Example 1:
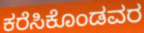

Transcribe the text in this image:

ಕರೆಸಿಕೊಂಡವರ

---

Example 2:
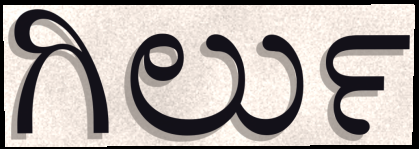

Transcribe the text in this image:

ಗಿರ್ಲು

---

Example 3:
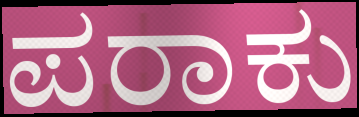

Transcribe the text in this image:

ಪರಾಕು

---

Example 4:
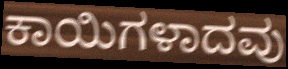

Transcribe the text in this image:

ಕಾಯಿಗಳಾದವು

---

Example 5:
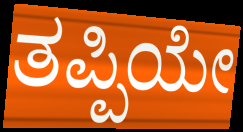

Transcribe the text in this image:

ತಪ್ಪಿಯೇ